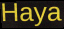
Haya